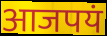
आजपयं